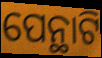
ପେନ୍ଥାଟି